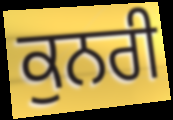
ਕੁਨਰੀ